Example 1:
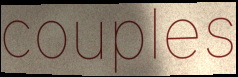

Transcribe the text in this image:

couples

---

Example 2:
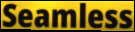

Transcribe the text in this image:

Seamless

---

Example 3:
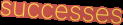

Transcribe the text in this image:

successes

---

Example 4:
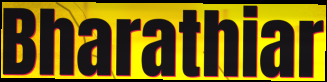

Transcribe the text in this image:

Bharathiar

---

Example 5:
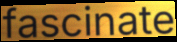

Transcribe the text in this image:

fascinate